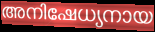
അനിഷേധ്യനായ